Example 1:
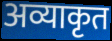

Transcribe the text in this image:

अव्याकृत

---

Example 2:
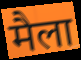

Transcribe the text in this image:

मैला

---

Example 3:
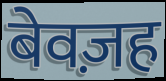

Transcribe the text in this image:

बेवज़ह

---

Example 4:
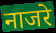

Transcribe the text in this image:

नाजरे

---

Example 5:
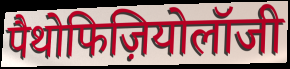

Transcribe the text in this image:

पैथोफिज़ियोलॉजी